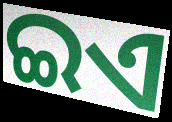
ଇଏ